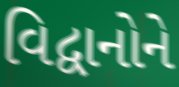
વિદ્વાનોને